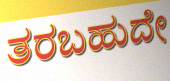
ತರಬಹುದೇ